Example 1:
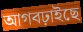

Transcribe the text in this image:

আগবঢ়াইছে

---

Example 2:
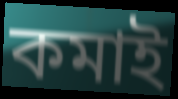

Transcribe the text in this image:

কমাই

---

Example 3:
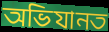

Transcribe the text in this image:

অভিযানত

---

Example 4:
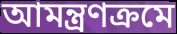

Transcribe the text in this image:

আমন্ত্ৰণক্ৰমে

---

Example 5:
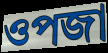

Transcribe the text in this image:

ওপজা